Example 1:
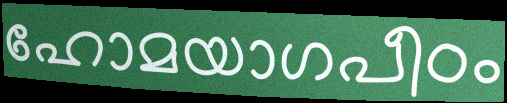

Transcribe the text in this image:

ഹോമയാഗപീഠം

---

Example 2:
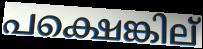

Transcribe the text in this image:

പക്ഷെങ്കില്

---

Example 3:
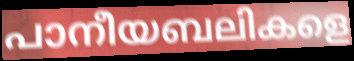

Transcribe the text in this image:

പാനീയബലികളെ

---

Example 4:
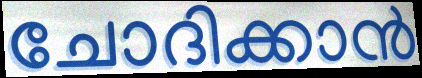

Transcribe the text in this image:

ചോദിക്കാൻ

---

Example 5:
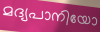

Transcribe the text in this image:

മദ്യപാനിയോ